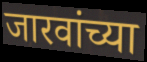
जारवांच्या